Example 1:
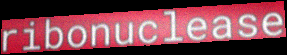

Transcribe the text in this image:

ribonuclease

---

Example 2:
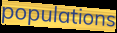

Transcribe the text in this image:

populations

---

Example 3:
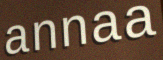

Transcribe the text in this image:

annaa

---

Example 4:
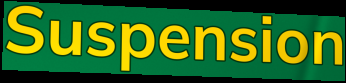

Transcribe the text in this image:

Suspension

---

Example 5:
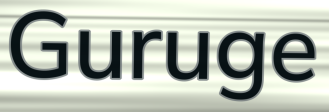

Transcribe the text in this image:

Guruge